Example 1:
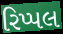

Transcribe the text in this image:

રિપ્પલ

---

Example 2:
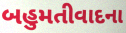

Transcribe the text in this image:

બહુમતીવાદના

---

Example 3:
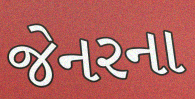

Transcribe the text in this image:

જેનરના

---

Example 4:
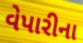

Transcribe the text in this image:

વેપારીના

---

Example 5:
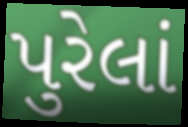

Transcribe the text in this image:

પુરેલાં